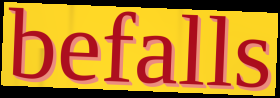
befalls